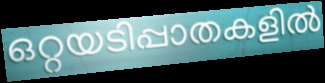
ഒറ്റയടിപ്പാതകളിൽ